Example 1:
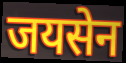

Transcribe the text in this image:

जयसेन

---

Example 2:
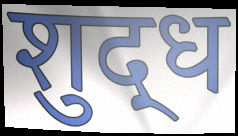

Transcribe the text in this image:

शुद्ध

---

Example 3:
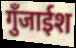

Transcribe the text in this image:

गुँजाईश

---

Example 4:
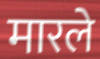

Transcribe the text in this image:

मारले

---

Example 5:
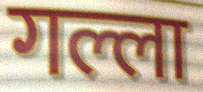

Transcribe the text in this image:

गल्ला